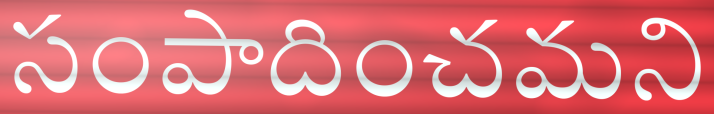
సంపాదించమని